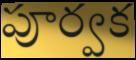
పూర్వక